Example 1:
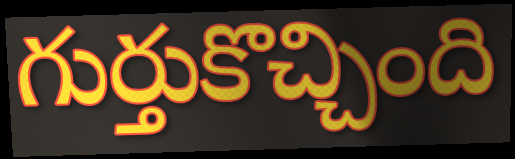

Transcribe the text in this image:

గుర్తుకొచ్చింది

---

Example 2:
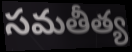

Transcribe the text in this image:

సమతీత్య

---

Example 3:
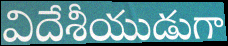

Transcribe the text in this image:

విదేశీయుడుగా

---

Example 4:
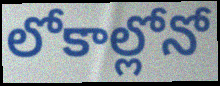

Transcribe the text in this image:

లోకాల్లోనో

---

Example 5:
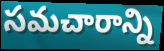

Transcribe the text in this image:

సమచారాన్ని